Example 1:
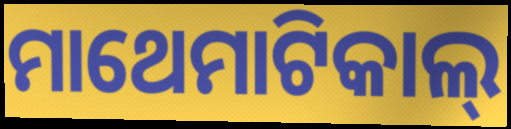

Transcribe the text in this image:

ମାଥେମାଟିକାଲ୍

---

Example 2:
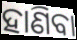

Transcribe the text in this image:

ହାଣିବା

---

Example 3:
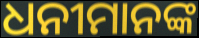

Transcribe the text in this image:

ଧନୀମାନଙ୍କ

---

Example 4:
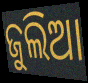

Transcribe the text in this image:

ଜୁଲିଆ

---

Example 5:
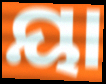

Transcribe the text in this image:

ୟା